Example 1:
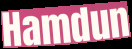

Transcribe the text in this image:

Hamdun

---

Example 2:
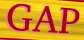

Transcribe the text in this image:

GAP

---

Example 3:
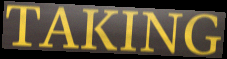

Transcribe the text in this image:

TAKING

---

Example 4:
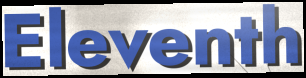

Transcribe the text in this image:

Eleventh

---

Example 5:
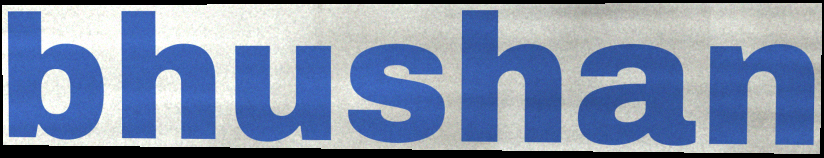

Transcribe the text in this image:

bhushan